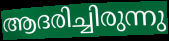
ആദരിച്ചിരുന്നു